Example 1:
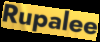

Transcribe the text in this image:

Rupalee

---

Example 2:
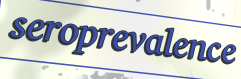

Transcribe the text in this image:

seroprevalence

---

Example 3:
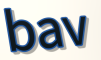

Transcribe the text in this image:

bav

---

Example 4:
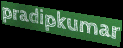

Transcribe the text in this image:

pradipkumar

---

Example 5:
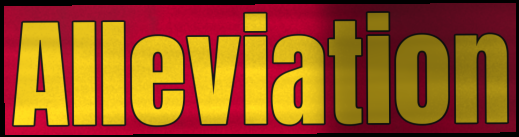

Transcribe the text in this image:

Alleviation